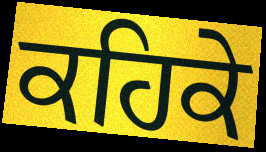
ਕਹਿਕੇ